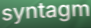
syntagm